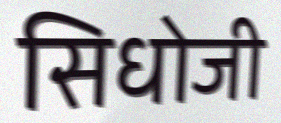
सिधोजी